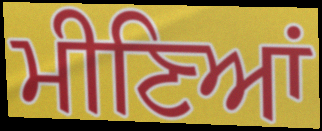
ਮੀਣਿਆਂ